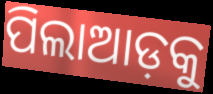
ପିଲାଆଡ଼କୁ